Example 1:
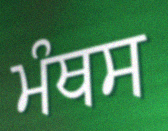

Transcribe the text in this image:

ਮੰਥਸ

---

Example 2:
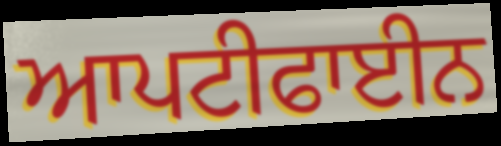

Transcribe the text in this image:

ਆਪਟੀਫਾਈਨ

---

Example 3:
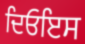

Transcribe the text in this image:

ਦਿਓਇਸ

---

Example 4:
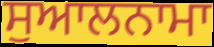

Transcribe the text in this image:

ਸੁਆਲਨਾਮਾ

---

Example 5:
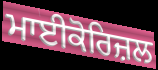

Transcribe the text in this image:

ਮਾਈਕੋਰਿਜ਼ਲ